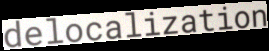
delocalization